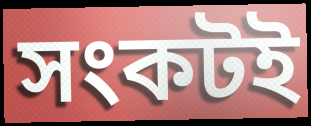
সংকটই